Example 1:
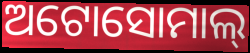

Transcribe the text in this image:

ଅଟୋସୋମାଲ୍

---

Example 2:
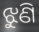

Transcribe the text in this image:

ଝୁଣି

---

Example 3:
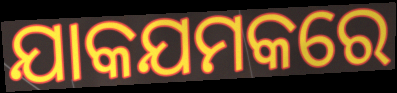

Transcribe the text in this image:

ଯାକଯମକରେ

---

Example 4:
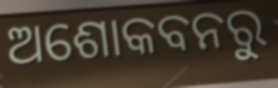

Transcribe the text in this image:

ଅଶୋକବନରୁ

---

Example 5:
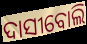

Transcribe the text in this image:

ଦାସୀବୋଲି